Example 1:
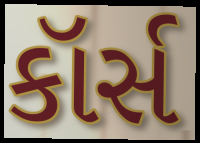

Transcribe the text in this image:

કૉર્સ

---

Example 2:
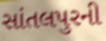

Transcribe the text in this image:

સાંતલપુરની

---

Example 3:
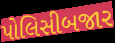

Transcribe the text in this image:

પોલિસીબજાર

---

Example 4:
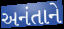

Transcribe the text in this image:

અનંતાને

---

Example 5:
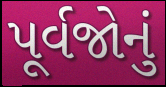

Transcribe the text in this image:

પૂર્વજોનું